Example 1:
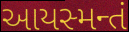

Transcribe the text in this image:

આયસ્મન્તં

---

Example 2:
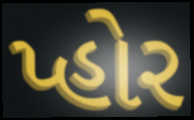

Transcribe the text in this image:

પ્હોર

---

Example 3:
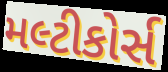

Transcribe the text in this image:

મલ્ટીકોર્સ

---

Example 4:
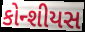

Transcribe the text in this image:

કોન્શીયસ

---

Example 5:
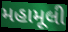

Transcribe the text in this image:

મહામૂલી